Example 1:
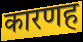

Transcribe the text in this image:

कारणह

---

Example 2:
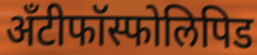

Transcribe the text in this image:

अँटीफॉस्फोलिपिड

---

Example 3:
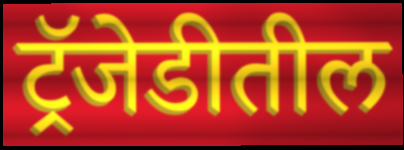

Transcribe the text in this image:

ट्रॅजेडीतील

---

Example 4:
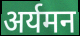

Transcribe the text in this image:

अर्यमन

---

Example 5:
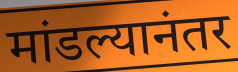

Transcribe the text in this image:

मांडल्यानंतर